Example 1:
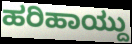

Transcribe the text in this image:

ಹರಿಹಾಯ್ದು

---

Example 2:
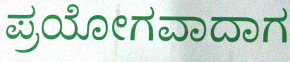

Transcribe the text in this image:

ಪ್ರಯೋಗವಾದಾಗ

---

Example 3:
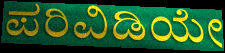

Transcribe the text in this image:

ಪರಿವಿಡಿಯೇ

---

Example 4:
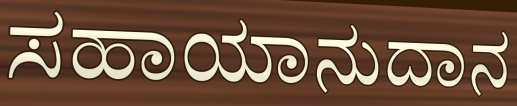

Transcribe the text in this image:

ಸಹಾಯಾನುದಾನ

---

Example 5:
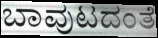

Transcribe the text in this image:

ಬಾವುಟದಂತೆ